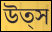
উত্স